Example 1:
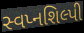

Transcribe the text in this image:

સ્વપ્નશિલ્પી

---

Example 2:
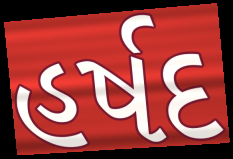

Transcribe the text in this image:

હર્ષદ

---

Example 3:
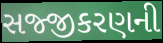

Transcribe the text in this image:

સજ્જીકરણની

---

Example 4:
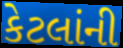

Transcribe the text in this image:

કેટલાંની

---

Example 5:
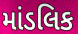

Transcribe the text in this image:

માંડલિક